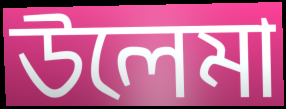
উলেমা